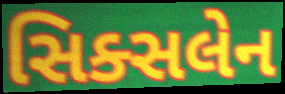
સિક્સલેન